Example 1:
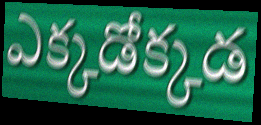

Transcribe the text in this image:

ఎక్కడోక్కడ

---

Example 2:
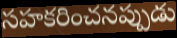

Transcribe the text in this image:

సహకరించనప్పుడు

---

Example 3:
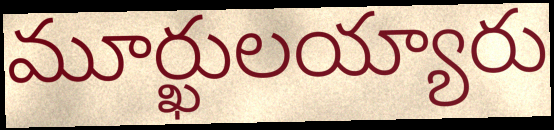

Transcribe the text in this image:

మూర్ఖులయ్యారు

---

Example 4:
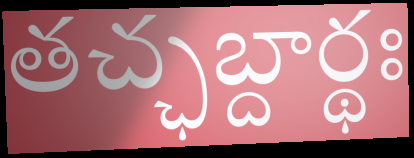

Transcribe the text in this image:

తచ్ఛబ్దార్థః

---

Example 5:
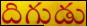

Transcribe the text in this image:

దిగుడు